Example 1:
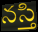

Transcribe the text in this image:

నస్తి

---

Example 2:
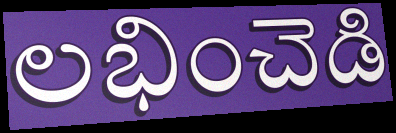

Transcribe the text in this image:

లభించెడి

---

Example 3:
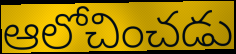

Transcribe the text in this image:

ఆలోచించడు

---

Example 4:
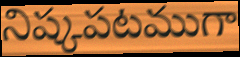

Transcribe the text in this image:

నిష్కపటముగా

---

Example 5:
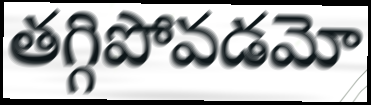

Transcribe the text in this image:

తగ్గిపోవడమో